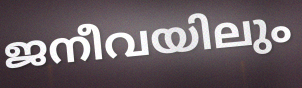
ജനീവയിലും